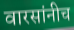
वारसांनीच